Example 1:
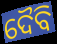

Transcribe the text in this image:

ଦୈବି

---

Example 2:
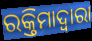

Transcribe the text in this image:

ରକ୍ତିମାଦ୍ୱାରା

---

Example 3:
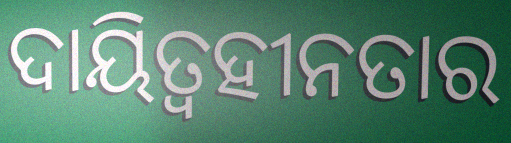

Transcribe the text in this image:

ଦାୟିତ୍ଵହୀନତାର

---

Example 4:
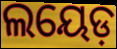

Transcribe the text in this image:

ଲୟେଡ଼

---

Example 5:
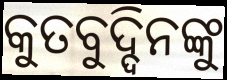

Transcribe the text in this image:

କୁତବୁଦ୍ଦିନଙ୍କୁ